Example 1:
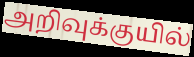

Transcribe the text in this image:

அறிவுக்குயில்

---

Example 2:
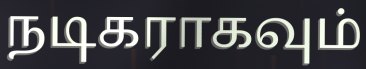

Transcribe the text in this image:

நடிகராகவும்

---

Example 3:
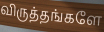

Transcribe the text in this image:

விருத்தங்களே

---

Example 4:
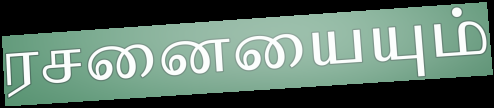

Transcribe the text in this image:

ரசனையையும்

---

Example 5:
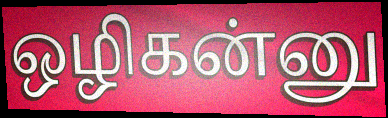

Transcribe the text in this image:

ஒழிகன்னு